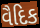
વૈદિક